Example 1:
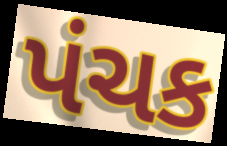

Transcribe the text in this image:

પંચક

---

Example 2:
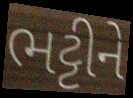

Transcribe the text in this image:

ભટ્ટીને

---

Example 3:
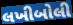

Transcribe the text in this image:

લખીબોલી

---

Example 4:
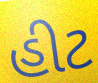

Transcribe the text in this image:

હીટ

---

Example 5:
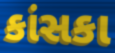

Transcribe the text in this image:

કાંસકા